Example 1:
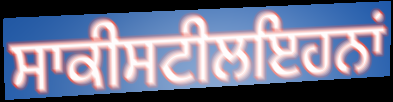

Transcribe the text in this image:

ਸਾਕੀਸਟੀਲਇਹਨਾਂ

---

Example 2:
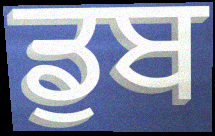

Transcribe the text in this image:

ਡੁਬ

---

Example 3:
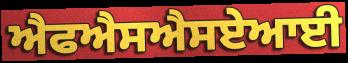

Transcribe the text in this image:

ਐਫਐਸਐਸਏਆਈ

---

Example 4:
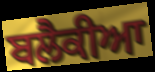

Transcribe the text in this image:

ਬਲੈਕੀਆ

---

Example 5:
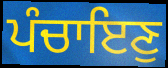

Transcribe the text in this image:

ਪੰਚਾਇਣੁ